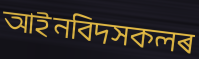
আইনবিদসকলৰ